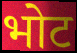
भोट